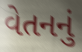
વેતનનું